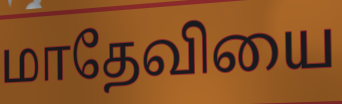
மாதேவியை